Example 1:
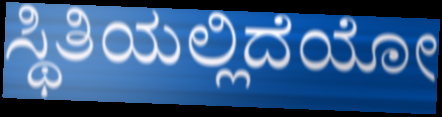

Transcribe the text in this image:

ಸ್ಥಿತಿಯಲ್ಲಿದೆಯೋ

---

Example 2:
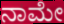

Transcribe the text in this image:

ನಾಮೇ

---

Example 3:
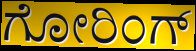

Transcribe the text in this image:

ಗೋರಿಂಗ್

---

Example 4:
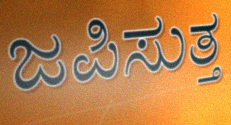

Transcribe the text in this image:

ಜಪಿಸುತ್ತ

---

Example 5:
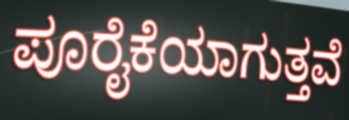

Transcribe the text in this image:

ಪೂರೈಕೆಯಾಗುತ್ತವೆ